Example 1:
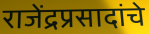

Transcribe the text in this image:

राजेंद्रप्रसादांचे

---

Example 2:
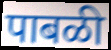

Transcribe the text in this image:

पाबळी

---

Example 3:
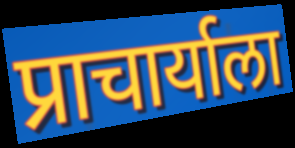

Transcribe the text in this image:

प्राचार्याला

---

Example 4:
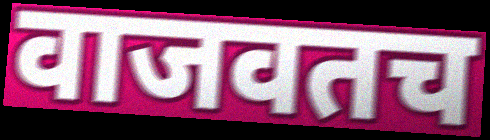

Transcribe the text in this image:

वाजवतच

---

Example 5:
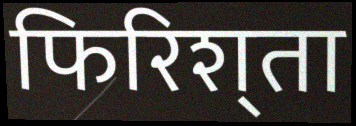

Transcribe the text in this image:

फिरिश्ता